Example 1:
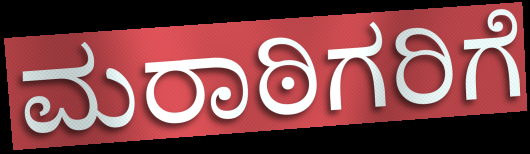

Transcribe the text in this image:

ಮರಾಠಿಗರಿಗೆ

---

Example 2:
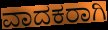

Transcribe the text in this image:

ವಾದಕರಾಗಿ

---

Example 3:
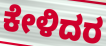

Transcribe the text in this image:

ಕೇಳಿದರ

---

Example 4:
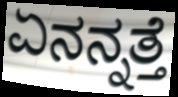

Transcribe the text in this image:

ಏನನ್ನತ್ತೆ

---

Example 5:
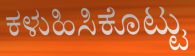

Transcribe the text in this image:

ಕಳುಹಿಸಿಕೊಟ್ಟು